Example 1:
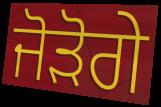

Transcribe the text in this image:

ਜੋੜੋਗੇ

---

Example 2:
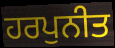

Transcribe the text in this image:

ਹਰਪੁਨੀਤ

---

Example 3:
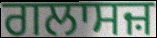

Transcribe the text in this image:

ਗਲਾਸਜ਼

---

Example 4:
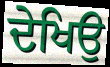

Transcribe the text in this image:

ਦੇਖਿਉ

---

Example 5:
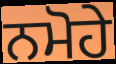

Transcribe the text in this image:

ਨਮੋਹੇ